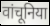
वांचूनिया